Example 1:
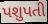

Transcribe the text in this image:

પશુપતી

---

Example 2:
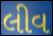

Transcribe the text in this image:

લીવ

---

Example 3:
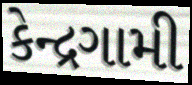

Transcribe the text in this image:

કેન્દ્રગામી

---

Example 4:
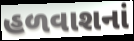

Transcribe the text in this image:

હળવાશનાં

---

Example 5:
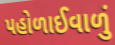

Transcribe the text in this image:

પહોળાઈવાળું